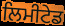
ਲਿਮੀਟੇਡ